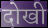
दोखी